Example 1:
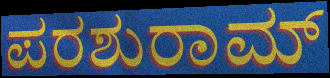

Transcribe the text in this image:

ಪರಶುರಾಮ್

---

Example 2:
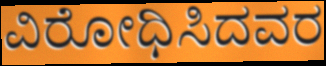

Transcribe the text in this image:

ವಿರೋಧಿಸಿದವರ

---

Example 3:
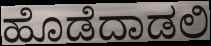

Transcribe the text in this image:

ಹೊಡೆದಾಡಲಿ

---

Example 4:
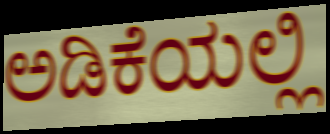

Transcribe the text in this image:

ಅಡಿಕೆಯಲ್ಲಿ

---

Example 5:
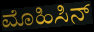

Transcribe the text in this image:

ಮೊಹಿಸಿನ್